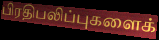
பிரதிபலிப்புகளைக்